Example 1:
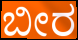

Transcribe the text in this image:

ಬೀರ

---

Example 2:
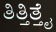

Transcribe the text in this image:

ತಿತ್ತಿತ್ತೈ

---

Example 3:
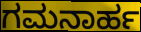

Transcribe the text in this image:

ಗಮನಾರ್ಹ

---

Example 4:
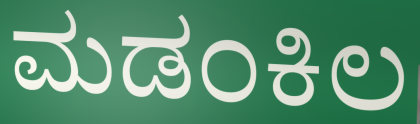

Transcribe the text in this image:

ಮಡಂಕಿಲ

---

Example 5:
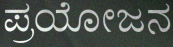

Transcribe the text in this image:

ಪ್ರಯೋಜನ